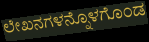
ಲೇಖನಗಳನ್ನೊಳಗೊಂಡ